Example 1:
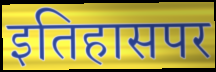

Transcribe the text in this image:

इतिहासपर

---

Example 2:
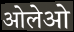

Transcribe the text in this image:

ओलेओ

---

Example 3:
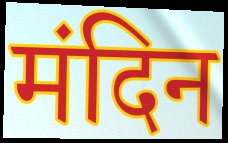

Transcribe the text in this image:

मंदिन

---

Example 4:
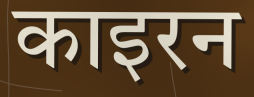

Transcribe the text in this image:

काइरन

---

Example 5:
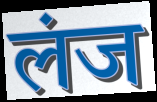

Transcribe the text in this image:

लंज